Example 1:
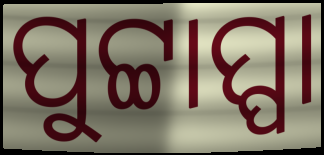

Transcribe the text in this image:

ପୁଟ୍ଟାପ୍ପା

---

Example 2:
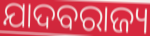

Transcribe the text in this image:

ଯାଦବରାଜ୍ୟ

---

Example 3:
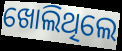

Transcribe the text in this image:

ଖୋଲିଥିଲେ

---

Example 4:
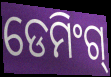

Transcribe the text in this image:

ଡେମିଂଗ୍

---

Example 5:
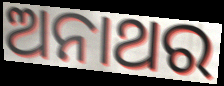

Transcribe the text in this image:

ଅନାଥର